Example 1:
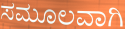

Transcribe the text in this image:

ಸಮೂಲವಾಗಿ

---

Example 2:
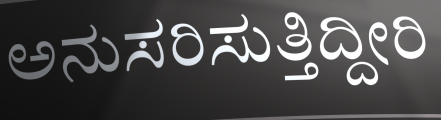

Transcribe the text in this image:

ಅನುಸರಿಸುತ್ತಿದ್ದೀರಿ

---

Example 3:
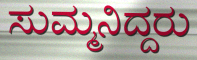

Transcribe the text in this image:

ಸುಮ್ಮನಿದ್ದರು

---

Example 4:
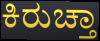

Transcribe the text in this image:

ಕಿರುಚ್ತಾ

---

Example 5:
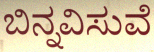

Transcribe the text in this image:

ಬಿನ್ನವಿಸುವೆ